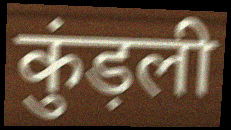
कुंड़ली